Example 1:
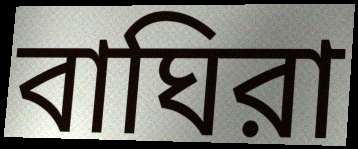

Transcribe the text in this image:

বাঘিরা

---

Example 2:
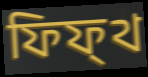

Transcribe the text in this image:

ফিফ্থ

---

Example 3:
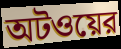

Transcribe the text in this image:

অটওয়ের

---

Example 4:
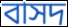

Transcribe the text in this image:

বাসদ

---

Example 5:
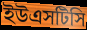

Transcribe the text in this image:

ইউএসটিসি